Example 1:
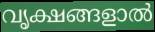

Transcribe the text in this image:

വൃക്ഷങ്ങളാൽ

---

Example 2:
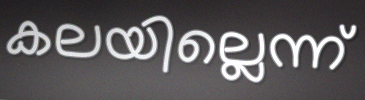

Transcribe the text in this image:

കലയില്ലെന്ന്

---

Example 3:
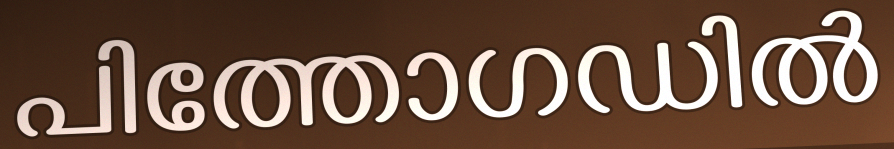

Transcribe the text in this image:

പിത്തോഗഡിൽ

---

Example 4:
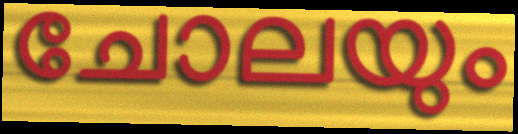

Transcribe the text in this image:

ചോലയും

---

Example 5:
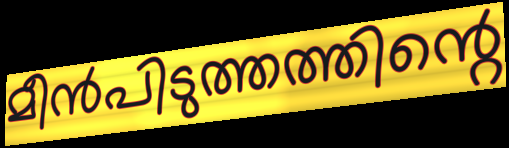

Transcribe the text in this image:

മീൻപിടുത്തത്തിന്റെ